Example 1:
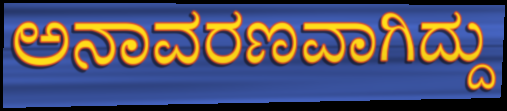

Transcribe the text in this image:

ಅನಾವರಣವಾಗಿದ್ದು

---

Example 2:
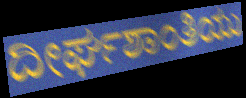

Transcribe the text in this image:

ದೀರ್ಘಶಾಂತಿಯು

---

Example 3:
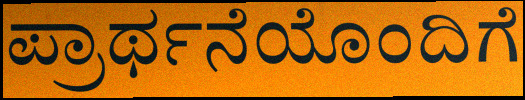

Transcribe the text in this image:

ಪ್ರಾರ್ಥನೆಯೊಂದಿಗೆ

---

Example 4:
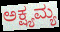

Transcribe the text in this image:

ಅಕ್ಷ್ಯಮ್ಯ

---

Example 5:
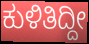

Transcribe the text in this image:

ಕುಳಿತಿದ್ದೀ